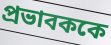
প্রভাবককে